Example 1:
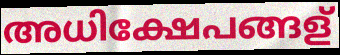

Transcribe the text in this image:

അധിക്ഷേപങ്ങള്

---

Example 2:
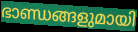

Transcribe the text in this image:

ഭാണ്ഡങ്ങളുമായി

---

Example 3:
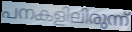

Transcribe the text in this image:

പനകളിലിരുന്ന്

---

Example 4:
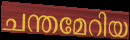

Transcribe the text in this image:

ചന്തമേറിയ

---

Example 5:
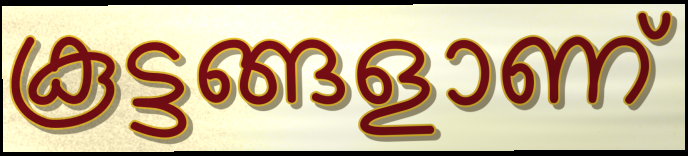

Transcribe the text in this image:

കൂട്ടങ്ങളാണ്